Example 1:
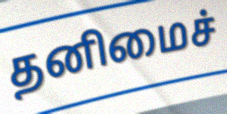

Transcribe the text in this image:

தனிமைச்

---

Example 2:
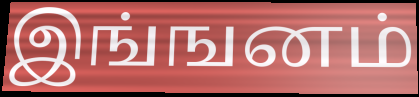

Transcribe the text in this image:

இங்ஙனம்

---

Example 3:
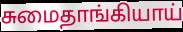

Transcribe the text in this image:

சுமைதாங்கியாய்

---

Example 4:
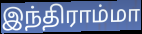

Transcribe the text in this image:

இந்திராம்மா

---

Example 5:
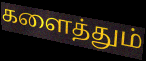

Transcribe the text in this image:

களைத்தும்